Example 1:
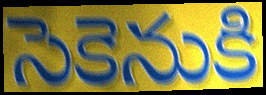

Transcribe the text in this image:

సెకెనుకి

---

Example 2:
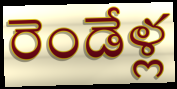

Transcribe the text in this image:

రెండేళ్ల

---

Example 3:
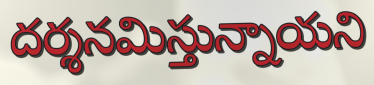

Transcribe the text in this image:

దర్శనమిస్తున్నాయని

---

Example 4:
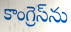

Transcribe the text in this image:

కాంగ్రెస్‌ను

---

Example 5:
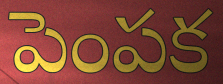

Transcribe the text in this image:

పెంపక